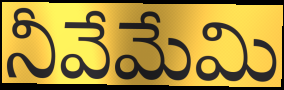
నీవేమేమి